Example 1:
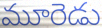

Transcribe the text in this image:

మూరెడు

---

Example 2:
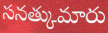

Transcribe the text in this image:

సనత్కుమారు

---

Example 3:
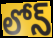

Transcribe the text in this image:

లోన్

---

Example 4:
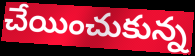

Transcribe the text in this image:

చేయించుకున్న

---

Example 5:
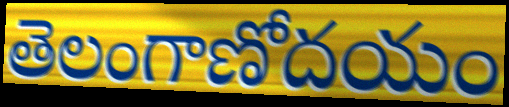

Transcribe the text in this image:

తెలంగాణోదయం